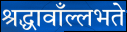
श्रद्धावाँल्लभते